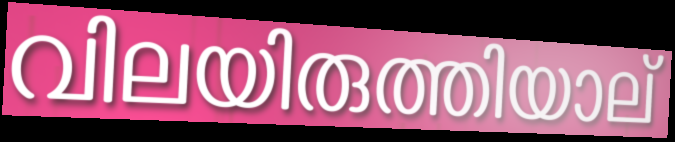
വിലയിരുത്തിയാല്